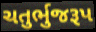
ચતુર્ભુજરૂપ